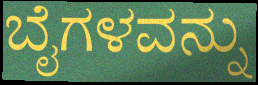
ಬೈಗಳವನ್ನು